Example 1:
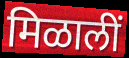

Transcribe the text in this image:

मिळालीं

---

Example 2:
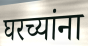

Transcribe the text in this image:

घरच्यांना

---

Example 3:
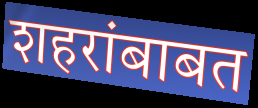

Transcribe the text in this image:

शहरांबाबत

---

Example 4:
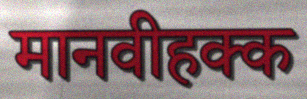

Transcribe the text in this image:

मानवीहक्क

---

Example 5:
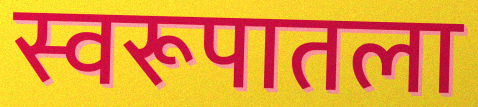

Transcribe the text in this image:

स्वरूपातला